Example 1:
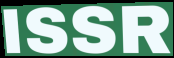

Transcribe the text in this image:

ISSR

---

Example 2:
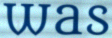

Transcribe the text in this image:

was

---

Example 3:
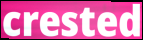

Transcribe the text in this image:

crested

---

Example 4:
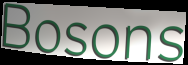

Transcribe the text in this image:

Bosons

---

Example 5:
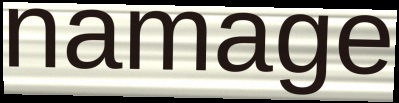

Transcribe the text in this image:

namage